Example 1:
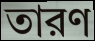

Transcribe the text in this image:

তারণ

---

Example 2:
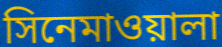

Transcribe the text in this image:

সিনেমাওয়ালা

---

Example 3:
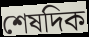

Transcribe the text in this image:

শেষদিক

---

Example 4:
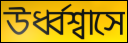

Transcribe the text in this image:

উর্ধ্বশ্বাসে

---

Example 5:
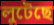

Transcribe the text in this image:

লুটেছে